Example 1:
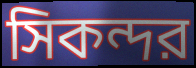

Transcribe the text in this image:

সিকন্দর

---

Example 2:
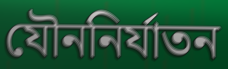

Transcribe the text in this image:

যৌননির্যাতন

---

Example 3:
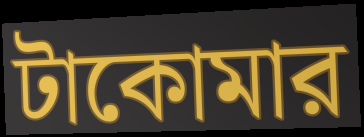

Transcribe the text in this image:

টাকোমার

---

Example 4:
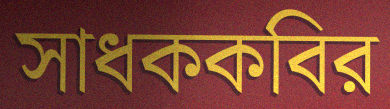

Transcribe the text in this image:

সাধককবির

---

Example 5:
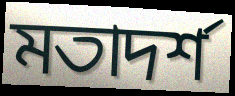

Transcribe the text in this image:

মতাদর্শ